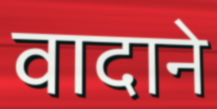
वादाने